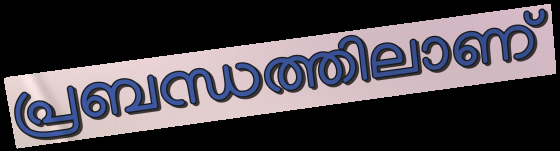
പ്രബന്ധത്തിലാണ്